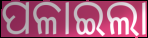
ପଳାଇଲା